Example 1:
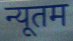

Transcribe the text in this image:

न्यूतम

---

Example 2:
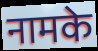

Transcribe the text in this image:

नामके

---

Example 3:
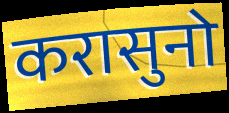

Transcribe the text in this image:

करासुनो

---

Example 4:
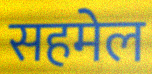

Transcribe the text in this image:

सहमेल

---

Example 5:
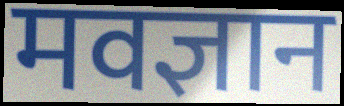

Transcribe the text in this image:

मवज्ञान